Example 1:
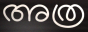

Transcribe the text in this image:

അത്ര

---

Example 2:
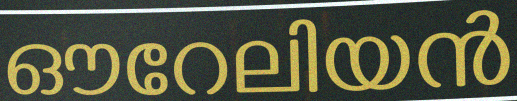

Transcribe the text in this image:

ഔറേലിയൻ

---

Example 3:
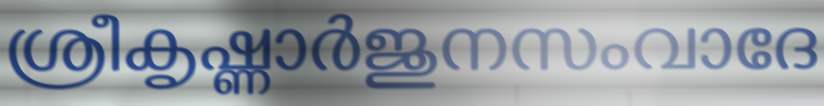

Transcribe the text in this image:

ശ്രീകൃഷ്ണാർജുനസംവാദേ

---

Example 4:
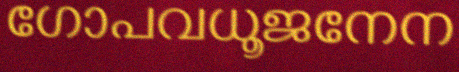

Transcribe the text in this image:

ഗോപവധൂജനേന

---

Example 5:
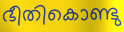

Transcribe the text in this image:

ഭീതികൊണ്ടു